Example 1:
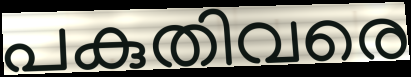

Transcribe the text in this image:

പകുതിവരെ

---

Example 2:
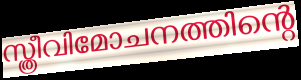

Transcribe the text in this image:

സ്ത്രീവിമോചനത്തിന്റെ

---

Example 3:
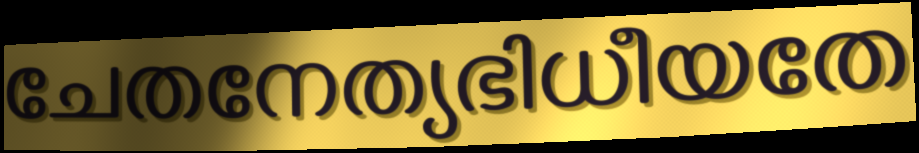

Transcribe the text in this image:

ചേതനേത്യഭിധീയതേ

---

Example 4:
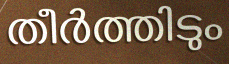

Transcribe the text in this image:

തീർത്തിടും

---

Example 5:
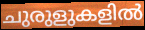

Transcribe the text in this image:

ചുരുളുകളിൽ